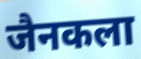
जैनकला